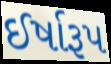
ઈર્ષારૂપ